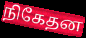
நிகேதன